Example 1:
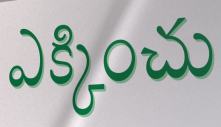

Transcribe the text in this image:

ఎక్కించు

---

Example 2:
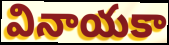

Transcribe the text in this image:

వినాయకా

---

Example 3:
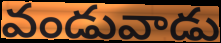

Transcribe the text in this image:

వండువాడు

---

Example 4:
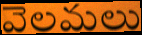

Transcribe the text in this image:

వెలమలు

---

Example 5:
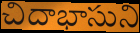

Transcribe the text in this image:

చిదాభాసుని